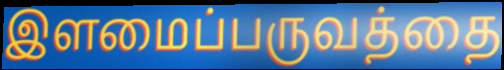
இளமைப்பருவத்தை